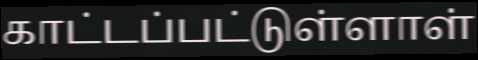
காட்டப்பட்டுள்ளாள்